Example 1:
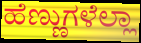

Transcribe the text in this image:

ಹೆಣ್ಣುಗಳೆಲ್ಲಾ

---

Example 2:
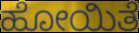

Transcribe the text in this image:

ಹೋಯಿತೆ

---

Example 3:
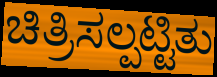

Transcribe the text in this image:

ಚಿತ್ರಿಸಲ್ಪಟ್ಟಿತು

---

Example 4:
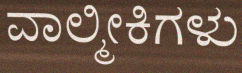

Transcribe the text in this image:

ವಾಲ್ಮೀಕಿಗಳು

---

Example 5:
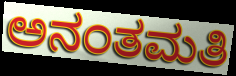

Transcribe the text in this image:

ಅನಂತಮತಿ